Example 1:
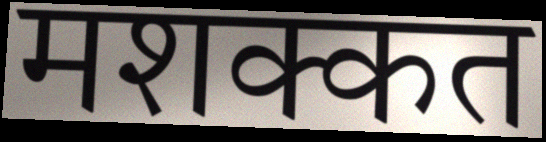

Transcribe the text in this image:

मशक्कत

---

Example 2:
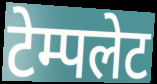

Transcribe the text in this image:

टेम्पलेट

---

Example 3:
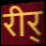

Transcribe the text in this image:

रीर्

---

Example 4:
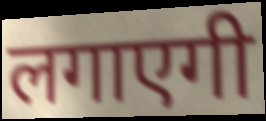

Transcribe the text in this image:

लगाएगी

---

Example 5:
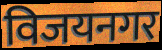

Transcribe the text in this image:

विजयनगर